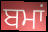
ਬਮਾਂ